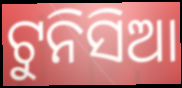
ଟୁନିସିଆ